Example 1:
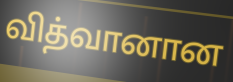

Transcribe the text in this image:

வித்வானான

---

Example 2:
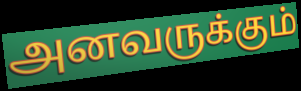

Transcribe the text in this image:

அனவருக்கும்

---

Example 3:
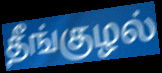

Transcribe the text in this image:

தீங்குழல்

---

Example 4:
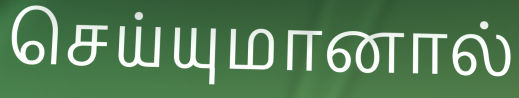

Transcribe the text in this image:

செய்யுமானால்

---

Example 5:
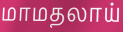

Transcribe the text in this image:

மாமதலாய்